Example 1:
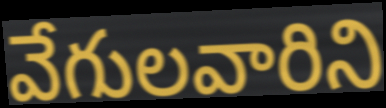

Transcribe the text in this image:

వేగులవారిని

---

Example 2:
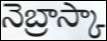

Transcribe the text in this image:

నెబ్రాస్కా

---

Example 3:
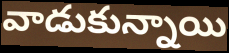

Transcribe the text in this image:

వాడుకున్నాయి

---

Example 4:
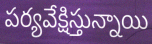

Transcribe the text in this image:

పర్యవేక్షిస్తున్నాయి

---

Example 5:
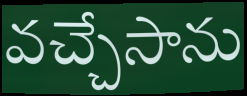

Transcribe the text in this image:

వచ్చేసాను